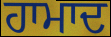
ਹਾਮਾਦ